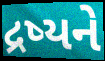
દ્રષ્યને